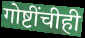
गोष्टींचीही